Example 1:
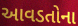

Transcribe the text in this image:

આવડતોના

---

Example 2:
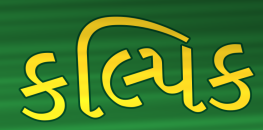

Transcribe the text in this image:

કલ્પિક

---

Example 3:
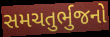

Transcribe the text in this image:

સમચતુર્ભુજનો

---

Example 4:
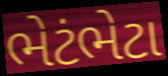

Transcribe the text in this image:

ભેટંભેટા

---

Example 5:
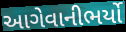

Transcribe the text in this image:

આગેવાનીભર્યો